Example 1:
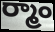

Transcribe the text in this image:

ర్మాం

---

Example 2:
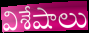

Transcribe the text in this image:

విశేషాలు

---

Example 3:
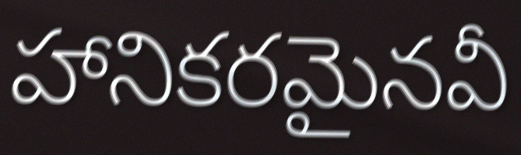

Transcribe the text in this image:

హానికరమైనవీ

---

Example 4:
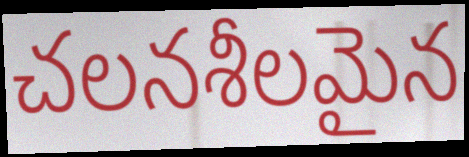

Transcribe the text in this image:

చలనశీలమైన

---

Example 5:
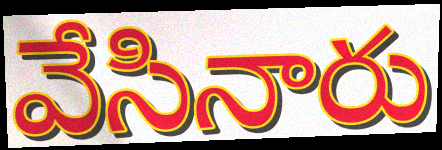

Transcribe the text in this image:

వేసినారు